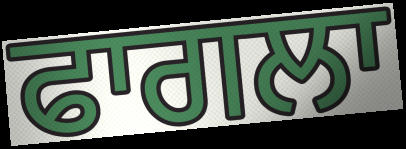
ਫਾਗਲਾ